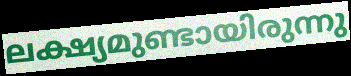
ലക്ഷ്യമുണ്ടായിരുന്നു